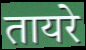
तायरे